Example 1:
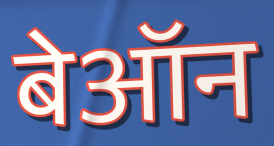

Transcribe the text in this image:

बेऑन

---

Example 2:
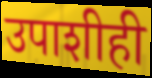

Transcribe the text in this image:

उपाशीही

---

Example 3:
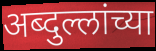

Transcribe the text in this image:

अब्दुल्लांच्या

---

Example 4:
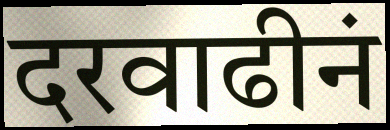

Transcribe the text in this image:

दरवाढीनं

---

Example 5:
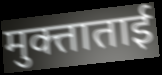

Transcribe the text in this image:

मुक्ताताई